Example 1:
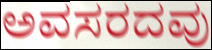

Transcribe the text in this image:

ಅವಸರದವು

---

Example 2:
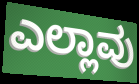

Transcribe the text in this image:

ಎಲ್ಲಾವು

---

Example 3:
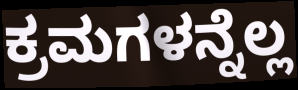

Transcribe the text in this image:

ಕ್ರಮಗಳನ್ನೆಲ್ಲ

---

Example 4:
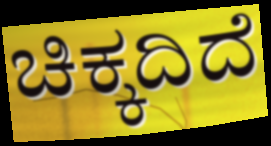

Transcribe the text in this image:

ಚಿಕ್ಕದಿದೆ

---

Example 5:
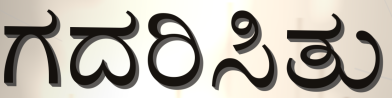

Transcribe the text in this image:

ಗದರಿಸಿತು